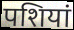
पशियां